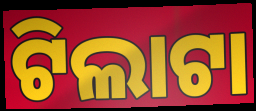
ଟିଲାଟା